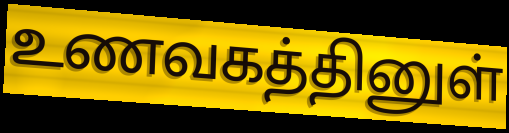
உணவகத்தினுள்